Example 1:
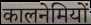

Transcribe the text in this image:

कालनेमियों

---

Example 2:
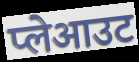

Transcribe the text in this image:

प्लेआउट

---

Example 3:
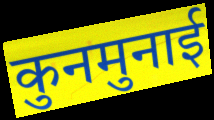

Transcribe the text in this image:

कुनमुनाई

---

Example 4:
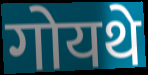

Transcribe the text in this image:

गोयथे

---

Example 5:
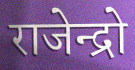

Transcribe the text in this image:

राजेन्द्रो